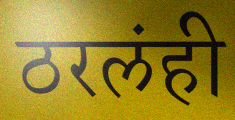
ठरलंही